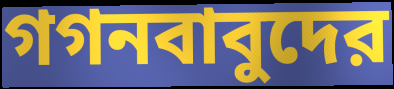
গগনবাবুদের